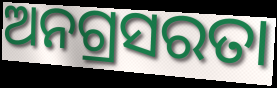
ଅନଗ୍ରସରତା